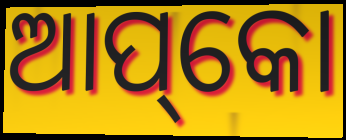
ଆପ୍‌କୋ